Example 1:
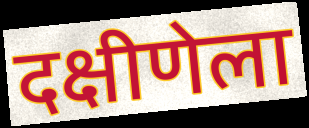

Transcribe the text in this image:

दक्षीणेला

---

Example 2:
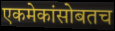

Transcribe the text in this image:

एकमेकांसोबतच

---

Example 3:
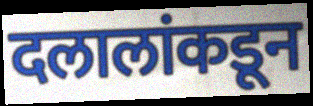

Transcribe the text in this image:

दलालांकडून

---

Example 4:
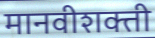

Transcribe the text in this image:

मानवीशक्ती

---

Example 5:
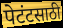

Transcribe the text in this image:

पेटंटसाठी